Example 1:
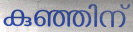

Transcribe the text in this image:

കുഞ്ഞിന്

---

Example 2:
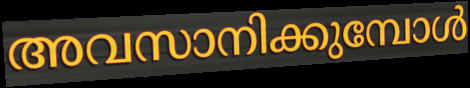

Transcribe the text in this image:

അവസാനിക്കുമ്പോൾ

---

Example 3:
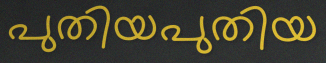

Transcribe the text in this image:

പുതിയപുതിയ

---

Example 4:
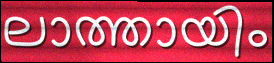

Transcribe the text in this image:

ലാത്തായിം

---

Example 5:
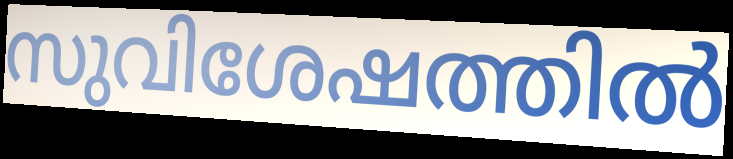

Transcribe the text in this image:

സുവിശേഷത്തിൽ